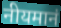
नीयमानं